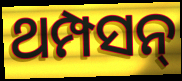
ଥମ୍ପସନ୍